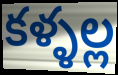
కళ్ళల్ల